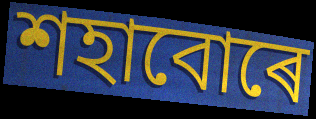
শহাবোৰে